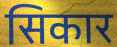
सिकार